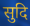
सुदि